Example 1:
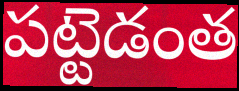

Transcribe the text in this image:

పట్టెడంత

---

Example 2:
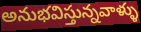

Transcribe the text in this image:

అనుభవిస్తున్నవాళ్ళు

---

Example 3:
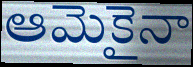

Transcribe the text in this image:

ఆమెకైనా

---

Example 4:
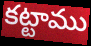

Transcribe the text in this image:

కట్టాము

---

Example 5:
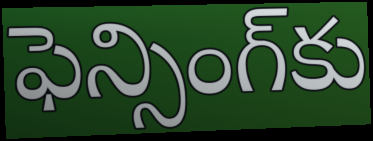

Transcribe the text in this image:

ఫెన్సింగ్‌కు